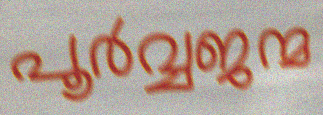
പൂർവ്വജന്മ